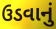
ઉડવાનું